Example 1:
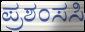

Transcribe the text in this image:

ಪ್ರಶಂಸಸಿ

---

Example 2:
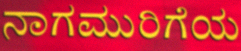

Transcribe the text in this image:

ನಾಗಮುರಿಗೆಯ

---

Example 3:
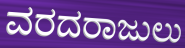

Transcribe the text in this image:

ವರದರಾಜುಲು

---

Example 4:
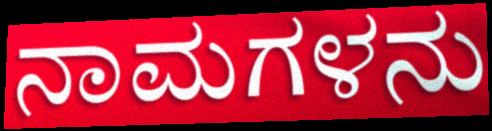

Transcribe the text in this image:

ನಾಮಗಳನು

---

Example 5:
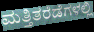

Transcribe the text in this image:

ಮತ್ತಿತರೆಡೆಗಳಲ್ಲಿ